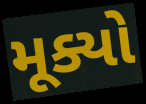
મૂક્યો